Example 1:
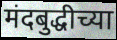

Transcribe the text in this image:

मंदबुद्धीच्या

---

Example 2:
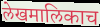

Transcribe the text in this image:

लेखमालिकाच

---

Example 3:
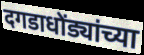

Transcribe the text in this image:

दगडाधोंड्यांच्या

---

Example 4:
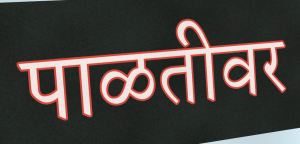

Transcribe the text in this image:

पाळतीवर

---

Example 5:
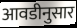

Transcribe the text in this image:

आवडीनुसार